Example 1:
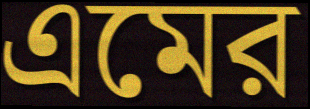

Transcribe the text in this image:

এমের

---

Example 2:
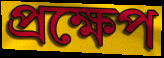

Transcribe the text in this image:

প্রক্ষেপ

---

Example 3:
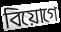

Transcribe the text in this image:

বিয়োগে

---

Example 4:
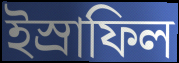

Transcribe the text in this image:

ইস্রাফিল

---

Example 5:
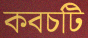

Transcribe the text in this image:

কবচটি